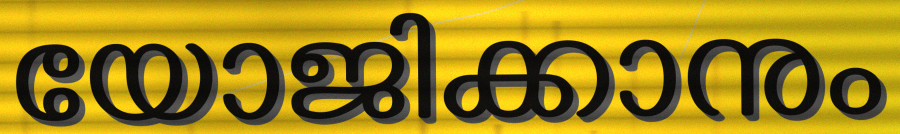
യോജിക്കാനും